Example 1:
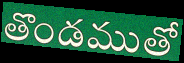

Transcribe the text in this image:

తొండముతో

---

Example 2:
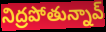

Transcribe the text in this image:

నిద్రపోతున్నావ్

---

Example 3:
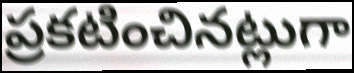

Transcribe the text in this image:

ప్రకటించినట్లుగా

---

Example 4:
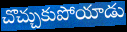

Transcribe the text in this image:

చొచ్చుకుపోయాడు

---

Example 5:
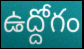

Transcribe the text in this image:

ఉద్దోగం